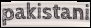
pakistani